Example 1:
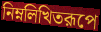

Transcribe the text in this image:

নিম্নলিখিতরূপে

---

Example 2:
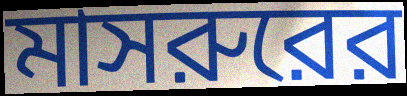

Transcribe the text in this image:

মাসরুরের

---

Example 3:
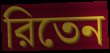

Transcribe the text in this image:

রিতেন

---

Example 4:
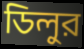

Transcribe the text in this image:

ডিলুর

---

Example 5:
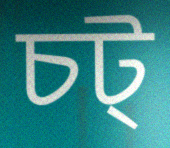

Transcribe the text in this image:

চট্